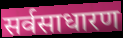
सर्वसाधारण